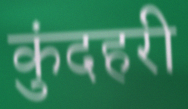
कुंदहरी